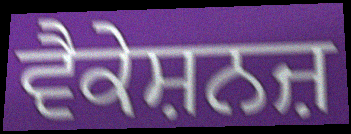
ਵੈਕੇਸ਼ਨਜ਼